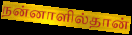
நன்னாளில்தான்